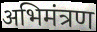
अभिमंत्रण